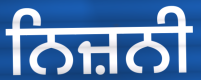
ਨਿਜ਼ਨੀ